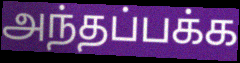
அந்தப்பக்க